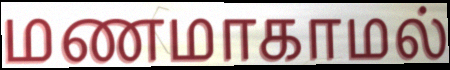
மணமாகாமல்